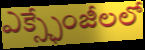
ఎక్స్ఛేంజీలలో